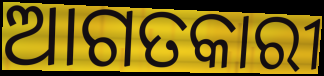
ଆଗତକାରୀ